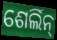
ଶେର୍ଲିନ୍